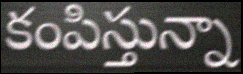
కంపిస్తున్నా